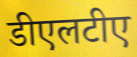
डीएलटीए